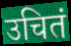
उचितं